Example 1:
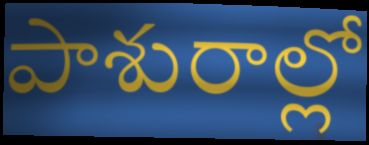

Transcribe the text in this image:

పాశురాల్లో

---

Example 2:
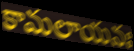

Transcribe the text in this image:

కామలాయనః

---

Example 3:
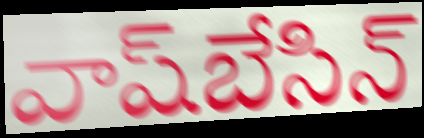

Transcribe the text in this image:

వాష్‌బేసిన్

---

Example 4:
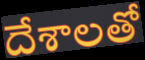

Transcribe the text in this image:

దేశాలతో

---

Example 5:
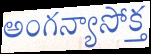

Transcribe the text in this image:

అంగన్యాసోక్త